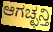
ಆಗಚ್ಛನ್ತಿ